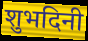
शुभदिनी